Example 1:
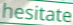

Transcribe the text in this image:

hesitate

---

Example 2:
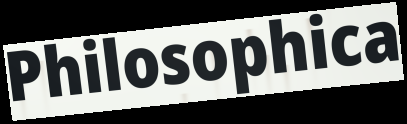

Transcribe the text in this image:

Philosophica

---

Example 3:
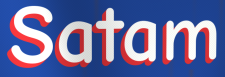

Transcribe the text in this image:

Satam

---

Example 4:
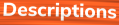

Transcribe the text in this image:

Descriptions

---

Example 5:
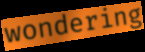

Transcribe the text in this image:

wondering